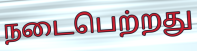
நடைபெற்றது